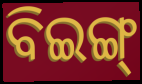
ବିଇଙ୍ଗ୍